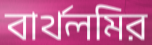
বার্থলমির